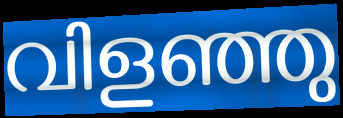
വിളഞ്ഞു